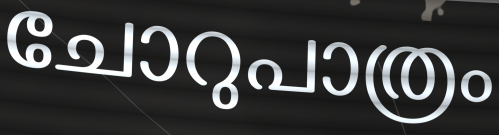
ചോറുപാത്രം